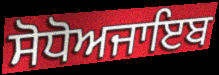
ਸੋਧੋਅਜਾਇਬ